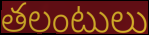
తలంటులు